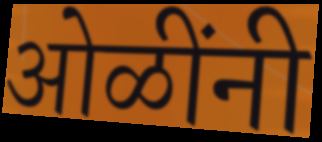
ओळींनी